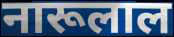
नारूलाल